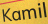
Kamil